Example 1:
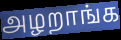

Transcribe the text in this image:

அழறாங்க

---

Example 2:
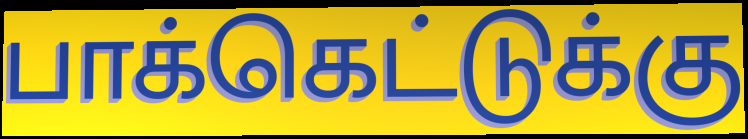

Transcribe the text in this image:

பாக்கெட்டுக்கு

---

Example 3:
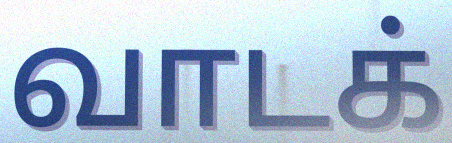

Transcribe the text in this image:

வாடக்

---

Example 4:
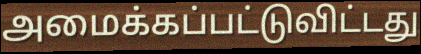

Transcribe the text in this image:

அமைக்கப்பட்டுவிட்டது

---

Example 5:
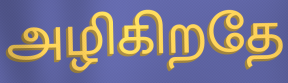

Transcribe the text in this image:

அழிகிறதே